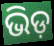
ଭିଡ଼